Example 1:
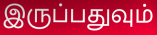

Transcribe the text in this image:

இருப்பதுவும்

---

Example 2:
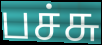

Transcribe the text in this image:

பச்சு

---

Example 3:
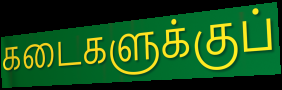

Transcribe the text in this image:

கடைகளுக்குப்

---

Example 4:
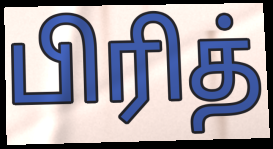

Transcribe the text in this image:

பிரித்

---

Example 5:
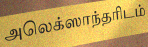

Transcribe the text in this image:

அலெக்ஸாந்தரிடம்